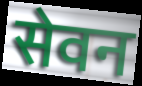
सेवन